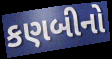
કણબીનો